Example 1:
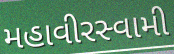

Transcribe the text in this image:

મહાવીરસ્વામી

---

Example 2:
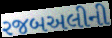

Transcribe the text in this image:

રજબઅલીની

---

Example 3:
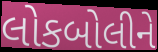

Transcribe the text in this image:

લોકબોલીને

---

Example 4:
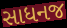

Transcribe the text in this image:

સાધનજ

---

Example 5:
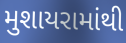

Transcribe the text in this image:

મુશાયરામાંથી